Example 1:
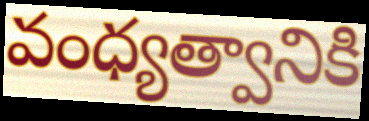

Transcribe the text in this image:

వంధ్యత్వానికి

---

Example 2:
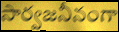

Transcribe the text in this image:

సార్వజనీనంగా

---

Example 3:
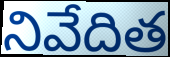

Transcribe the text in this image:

నివేదిత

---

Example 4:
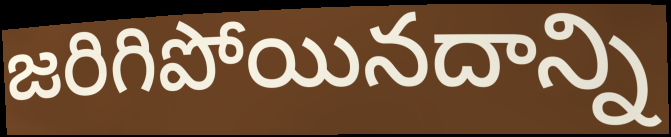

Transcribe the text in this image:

జరిగిపోయినదాన్ని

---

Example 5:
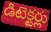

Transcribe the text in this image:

డిటెక్టర్లు